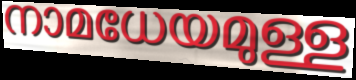
നാമധേയമുള്ള